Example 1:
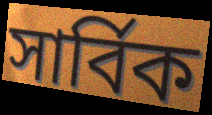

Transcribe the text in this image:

সার্বিক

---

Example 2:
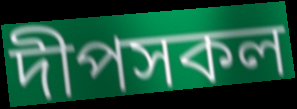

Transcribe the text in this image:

দীপসকল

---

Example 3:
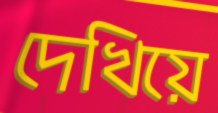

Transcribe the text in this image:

দেখিয়ে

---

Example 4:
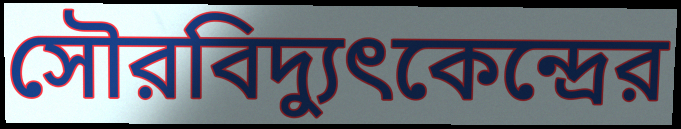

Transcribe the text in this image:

সৌরবিদ্যুৎকেন্দ্রের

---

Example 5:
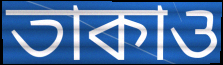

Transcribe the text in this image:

তাকাও